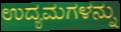
ಉದ್ಯಮಗಳನ್ನು